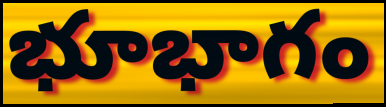
భూభాగం